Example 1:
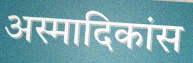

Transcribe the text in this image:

अस्मादिकांस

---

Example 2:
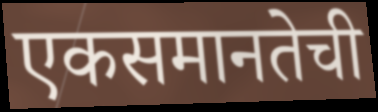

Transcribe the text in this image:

एकसमानतेची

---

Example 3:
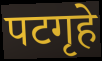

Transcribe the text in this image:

पटगृहे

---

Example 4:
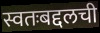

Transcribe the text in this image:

स्वतःबद्दलची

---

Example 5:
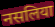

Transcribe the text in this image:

नसलिया